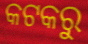
କଟକରୁ